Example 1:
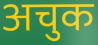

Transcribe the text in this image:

अचुक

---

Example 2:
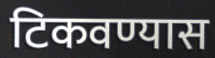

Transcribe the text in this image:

टिकवण्यास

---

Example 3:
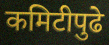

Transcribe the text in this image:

कमिटीपुढे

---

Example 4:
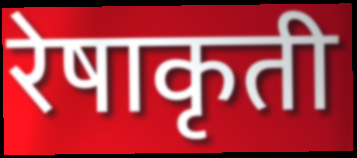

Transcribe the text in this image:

रेषाकृती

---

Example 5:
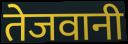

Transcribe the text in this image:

तेजवानी